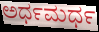
ಅರ್ಧಮರ್ಧ